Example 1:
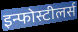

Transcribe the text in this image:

इन्फोस्टीलर्स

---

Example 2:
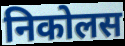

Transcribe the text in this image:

निकोलस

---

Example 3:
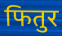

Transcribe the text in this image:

फितुर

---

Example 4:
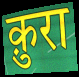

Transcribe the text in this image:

क़ुरा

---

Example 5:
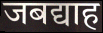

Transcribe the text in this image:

जबद्याह